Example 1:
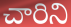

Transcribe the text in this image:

చారిని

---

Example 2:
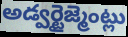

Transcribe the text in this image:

అడ్వర్టైజ్మెంట్లు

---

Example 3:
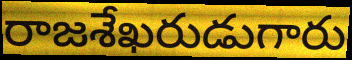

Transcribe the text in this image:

రాజశేఖరుడుగారు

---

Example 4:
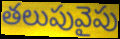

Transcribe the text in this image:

తలుపువైపు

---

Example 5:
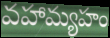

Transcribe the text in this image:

వహామ్యహం